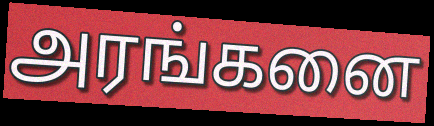
அரங்கனை